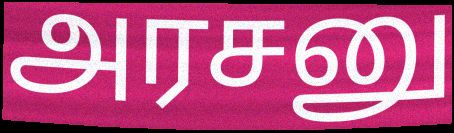
அரசனு